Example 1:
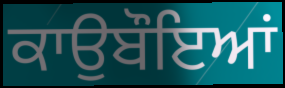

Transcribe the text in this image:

ਕਾਉਬੌਇਆਂ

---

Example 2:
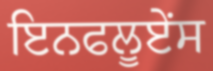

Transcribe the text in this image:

ਇਨਫਲੂਏਂਸ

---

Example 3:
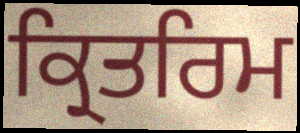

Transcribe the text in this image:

ਕ੍ਰਿਤਰਿਮ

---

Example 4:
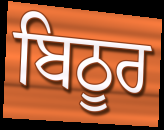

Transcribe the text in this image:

ਬਿਠੂਰ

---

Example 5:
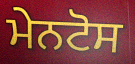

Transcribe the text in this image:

ਮੇਨਟੋਸ